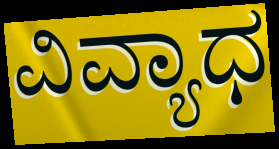
ವಿವ್ಯಾಧ